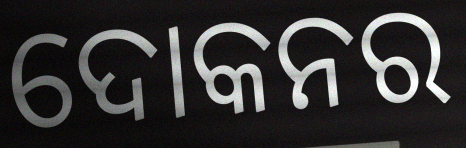
ଦୋକନର